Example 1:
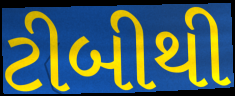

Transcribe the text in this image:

ટીબીથી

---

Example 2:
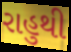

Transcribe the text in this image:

રાહુથી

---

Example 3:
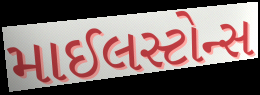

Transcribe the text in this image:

માઈલસ્ટોન્સ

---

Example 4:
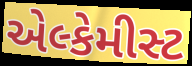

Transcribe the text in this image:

એલ્કેમીસ્ટ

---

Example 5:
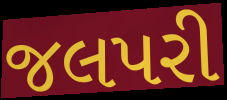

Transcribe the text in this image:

જલપરી